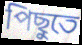
পিছুতে